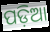
ପଡ଼ିଆ